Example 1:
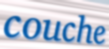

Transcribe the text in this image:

couche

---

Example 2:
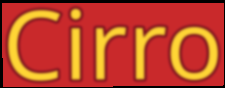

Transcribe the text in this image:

Cirro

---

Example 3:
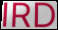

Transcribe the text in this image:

IRD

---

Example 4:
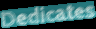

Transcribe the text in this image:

Dedicates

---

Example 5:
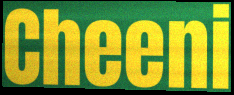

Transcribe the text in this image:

Cheeni